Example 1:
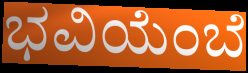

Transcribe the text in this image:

ಭವಿಯೆಂಬೆ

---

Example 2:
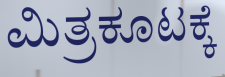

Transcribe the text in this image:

ಮಿತ್ರಕೂಟಕ್ಕೆ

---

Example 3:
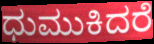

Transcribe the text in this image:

ಧುಮುಕಿದರೆ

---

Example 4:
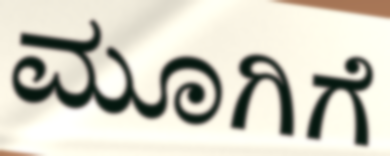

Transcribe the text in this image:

ಮೂಗಿಗೆ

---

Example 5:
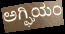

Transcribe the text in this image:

ಅಗ್ಘಿಯಂ